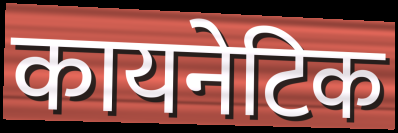
कायनेटिक